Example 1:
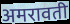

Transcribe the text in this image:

अमरावती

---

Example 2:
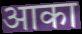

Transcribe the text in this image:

आका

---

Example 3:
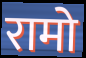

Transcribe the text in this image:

रामो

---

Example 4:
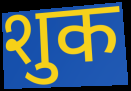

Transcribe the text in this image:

शुक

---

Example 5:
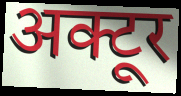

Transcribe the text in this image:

अक्टूर